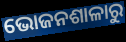
ଭୋଜନଶାଳାରୁ